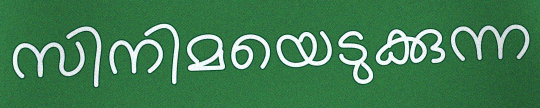
സിനിമയെടുക്കുന്ന